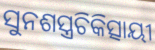
ସୁନଶସ୍ତ୍ରଚିକିତ୍ସାୟୀ